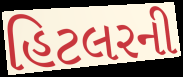
હિટલરની